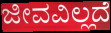
ಜೀವವಿಲ್ಲದೆ